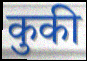
कुकी